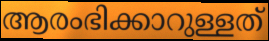
ആരംഭിക്കാറുള്ളത്